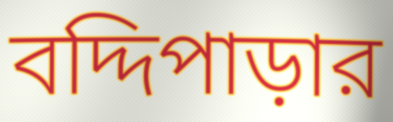
বদ্দিপাড়ার